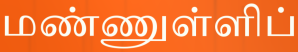
மண்ணுள்ளிப்